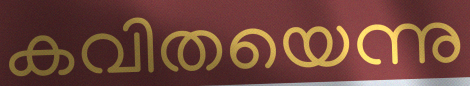
കവിതയെന്നു